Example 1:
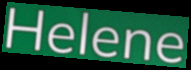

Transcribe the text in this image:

Helene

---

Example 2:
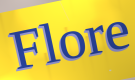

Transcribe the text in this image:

Flore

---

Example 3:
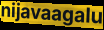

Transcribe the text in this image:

nijavaagalu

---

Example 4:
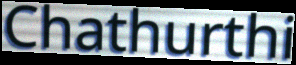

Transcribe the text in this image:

Chathurthi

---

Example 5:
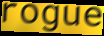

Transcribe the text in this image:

rogue